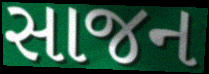
સાજન